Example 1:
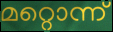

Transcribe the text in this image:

മറ്റൊന്ന്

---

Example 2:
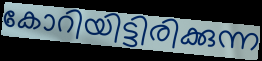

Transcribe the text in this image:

കോറിയിട്ടിരിക്കുന്ന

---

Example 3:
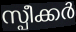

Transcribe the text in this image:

സ്പീക്കർ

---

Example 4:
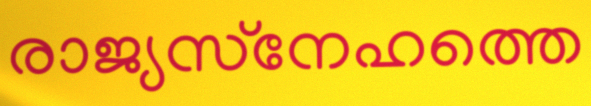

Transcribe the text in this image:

രാജ്യസ്‌നേഹത്തെ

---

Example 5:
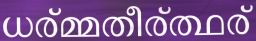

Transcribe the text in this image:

ധര്മ്മതീര്ത്ഥര്